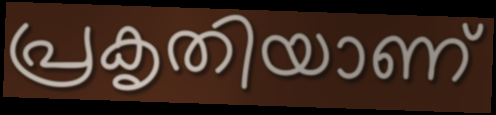
പ്രകൃതിയാണ്